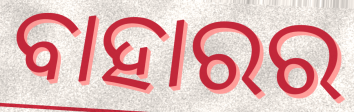
ବାହାରର